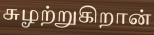
சுழற்றுகிறான்